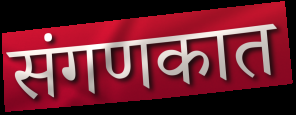
संगणकात